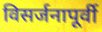
विसर्जनापूर्वी